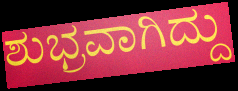
ಶುಭ್ರವಾಗಿದ್ದು